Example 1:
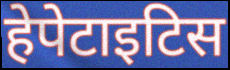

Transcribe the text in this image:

हेपेटाइटिस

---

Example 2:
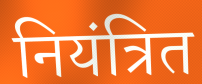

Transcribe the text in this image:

नियंत्रित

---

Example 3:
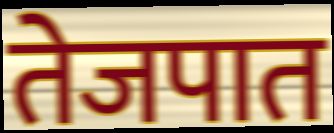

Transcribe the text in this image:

तेजपात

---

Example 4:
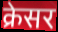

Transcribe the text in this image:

क्रेसर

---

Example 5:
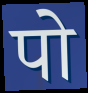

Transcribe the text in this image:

पो